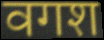
वगश